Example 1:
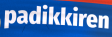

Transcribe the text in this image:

padikkiren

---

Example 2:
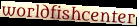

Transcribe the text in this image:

worldfishcenter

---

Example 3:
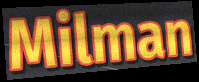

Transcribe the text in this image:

Milman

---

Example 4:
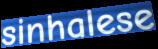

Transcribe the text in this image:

sinhalese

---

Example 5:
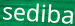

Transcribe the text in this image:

sediba